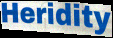
Heridity